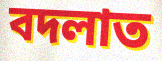
বদলাত